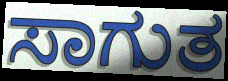
ಸಾಗುತ